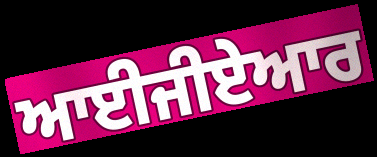
ਆਈਜੀਏਆਰ